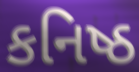
કનિષ્ઠ